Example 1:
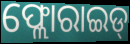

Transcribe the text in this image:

ଫ୍ଲୋରାଇଡ୍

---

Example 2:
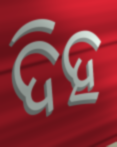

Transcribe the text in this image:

ଦିହ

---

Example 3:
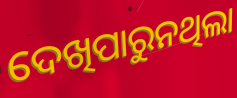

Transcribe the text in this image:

ଦେଖିପାରୁନଥିଲା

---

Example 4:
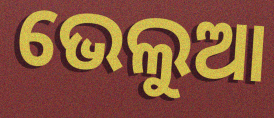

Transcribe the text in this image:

ଭେଲୁଆ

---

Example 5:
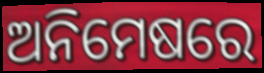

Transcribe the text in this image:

ଅନିମେଷରେ